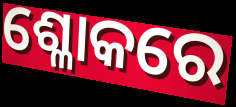
ଶ୍ଳୋକରେ